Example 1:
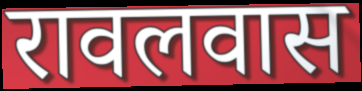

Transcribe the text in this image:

रावलवास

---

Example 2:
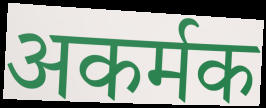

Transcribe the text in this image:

अकर्मक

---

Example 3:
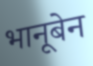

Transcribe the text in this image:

भानूबेन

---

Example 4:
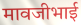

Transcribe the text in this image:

मावजीभाई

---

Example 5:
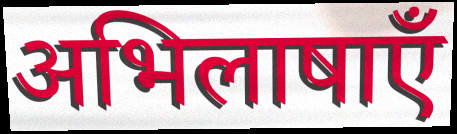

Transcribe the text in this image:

अभिलाषाएँ